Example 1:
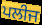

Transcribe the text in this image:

ਪਲੀਜ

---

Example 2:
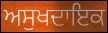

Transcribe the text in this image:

ਅਸੁਖਦਾਇਕ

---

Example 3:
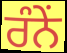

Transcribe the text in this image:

ਰੰਨੇਂ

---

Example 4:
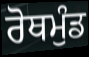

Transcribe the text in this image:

ਰੋਥਮੁੰਡ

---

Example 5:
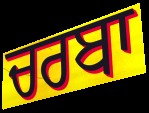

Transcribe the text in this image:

ਚਰਬਾ